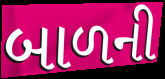
બાળની